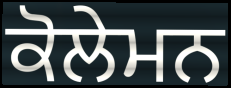
ਕੋਲੇਮਨ